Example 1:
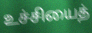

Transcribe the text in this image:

உச்சியைத்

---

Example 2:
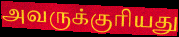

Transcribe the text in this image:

அவருக்குரியது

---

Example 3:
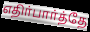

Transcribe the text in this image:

எதிர்பார்த்தே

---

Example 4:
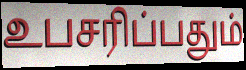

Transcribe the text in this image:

உபசரிப்பதும்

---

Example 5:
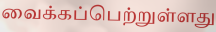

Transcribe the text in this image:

வைக்கப்பெற்றுள்ளது